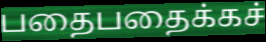
பதைபதைக்கச்